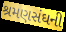
શ્રમણસંઘની